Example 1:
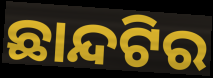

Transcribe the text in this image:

ଛାନ୍ଦଟିର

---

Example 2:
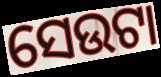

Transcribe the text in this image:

ସେଉଟା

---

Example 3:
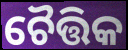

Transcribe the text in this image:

ଚୈତ୍ତିକ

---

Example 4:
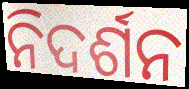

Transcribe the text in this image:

ନିଦର୍ଶନ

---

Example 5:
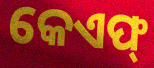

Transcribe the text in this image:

କେଏଫ୍